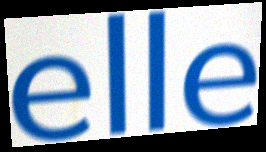
elle